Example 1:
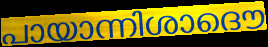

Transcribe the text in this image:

പായാന്നിശാദൌ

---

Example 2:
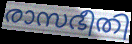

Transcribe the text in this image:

രാസഭീതി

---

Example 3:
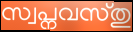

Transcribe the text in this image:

സ്വപ്നവസ്തു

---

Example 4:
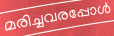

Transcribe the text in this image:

മരിച്ചവരപ്പോൾ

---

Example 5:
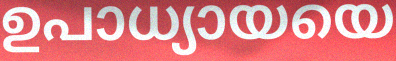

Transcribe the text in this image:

ഉപാധ്യായയെ